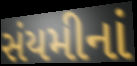
સંયમીનાં